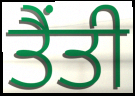
ਤੈਂਤੀ